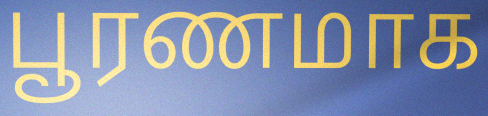
பூரணமாக